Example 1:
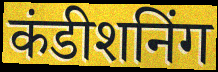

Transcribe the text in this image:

कंडीशनिंग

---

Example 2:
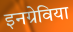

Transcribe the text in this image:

इनग्रेविया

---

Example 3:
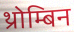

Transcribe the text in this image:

थ्रोम्बिन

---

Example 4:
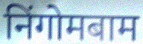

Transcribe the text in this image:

निंगोमबाम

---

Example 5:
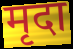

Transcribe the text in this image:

मृदा